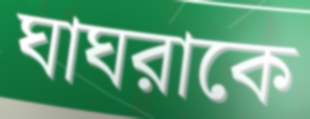
ঘাঘরাকে